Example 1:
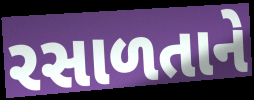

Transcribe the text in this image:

રસાળતાને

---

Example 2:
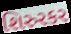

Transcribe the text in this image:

શિરુરકર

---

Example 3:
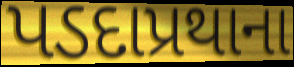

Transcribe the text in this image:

પડદાપ્રથાના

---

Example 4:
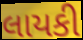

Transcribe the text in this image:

લાયકી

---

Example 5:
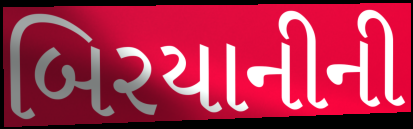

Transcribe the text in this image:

બિરયાનીની